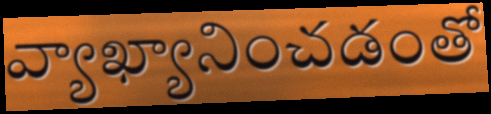
వ్యాఖ్యానించడంతో